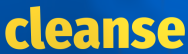
cleanse